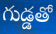
గుడ్డతో